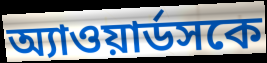
অ্যাওয়ার্ডসকে